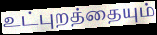
உட்புறத்தையும்